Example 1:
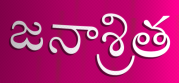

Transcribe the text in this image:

జనాశ్రిత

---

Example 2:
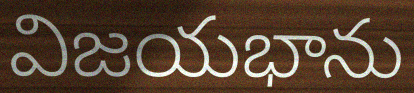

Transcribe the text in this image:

విజయభాను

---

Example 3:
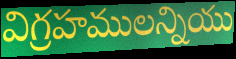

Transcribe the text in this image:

విగ్రహములన్నియు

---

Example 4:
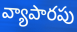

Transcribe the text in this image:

వ్యాపారపు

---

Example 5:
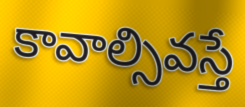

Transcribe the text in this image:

కావాల్సివస్తే